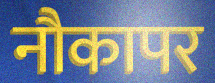
नौकापर